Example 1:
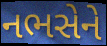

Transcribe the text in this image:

નભસેને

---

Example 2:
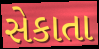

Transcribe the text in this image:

સેકાતા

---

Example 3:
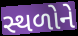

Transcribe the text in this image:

સ્થળોને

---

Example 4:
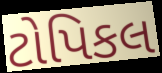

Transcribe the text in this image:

ટોપિકલ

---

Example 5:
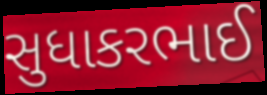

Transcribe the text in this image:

સુધાકરભાઈ